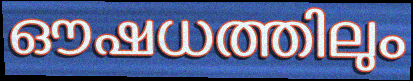
ഔഷധത്തിലും